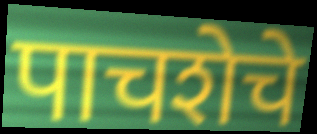
पाचशेचे